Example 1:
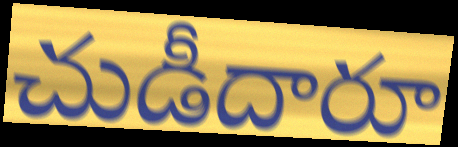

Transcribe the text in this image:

చుడీదారూ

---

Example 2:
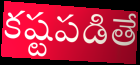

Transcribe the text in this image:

కష్టపడితే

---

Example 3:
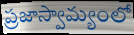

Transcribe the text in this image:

ప్రజాస్వామ్యంలో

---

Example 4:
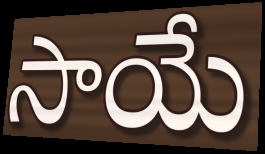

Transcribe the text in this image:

సాయే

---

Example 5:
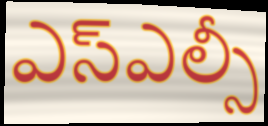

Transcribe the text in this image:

ఎస్ఎల్సీ